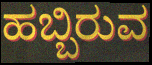
ಹಬ್ಬಿರುವ